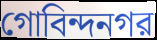
গোবিন্দনগর